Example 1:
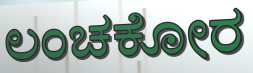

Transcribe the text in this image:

ಲಂಚಕೋರ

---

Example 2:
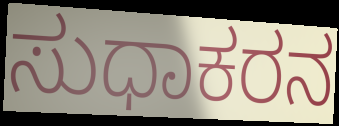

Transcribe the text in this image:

ಸುಧಾಕರನ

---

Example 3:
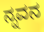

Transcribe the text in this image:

ನ್ನವನ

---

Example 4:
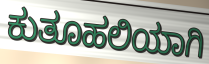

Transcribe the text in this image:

ಕುತೂಹಲಿಯಾಗಿ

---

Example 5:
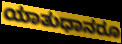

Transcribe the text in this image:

ಯಾತುಧಾನರೂ